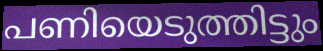
പണിയെടുത്തിട്ടും